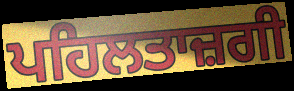
ਪਹਿਲਤਾਜ਼ਗੀ